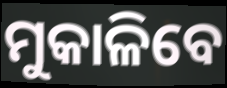
ମୁକାଳିବେ